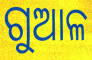
ଗୁଆଳ